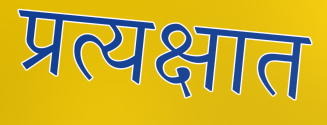
प्रत्यक्षात